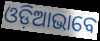
ଓଡ଼ିଆଭାବେ